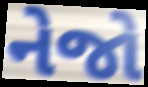
નેજો